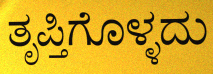
ತೃಪ್ತಿಗೊಳ್ಳದು